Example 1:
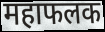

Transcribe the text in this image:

महाफलक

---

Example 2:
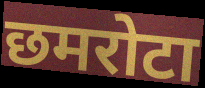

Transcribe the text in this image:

छमरोटा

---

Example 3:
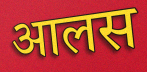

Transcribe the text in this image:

आलस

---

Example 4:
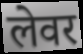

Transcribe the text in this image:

लेवर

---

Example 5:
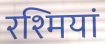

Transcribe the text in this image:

रश्मियां